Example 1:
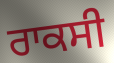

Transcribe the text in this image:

ਰਾਕਸੀ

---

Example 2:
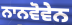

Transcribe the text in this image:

ਨਾਨਵੋਵੇਨ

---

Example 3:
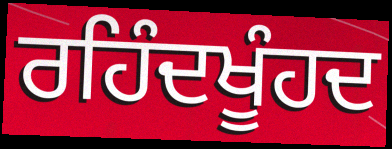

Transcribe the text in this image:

ਰਹਿੰਦਖੂੰਹਦ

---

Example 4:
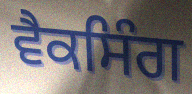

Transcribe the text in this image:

ਵੈਕਸਿੰਗ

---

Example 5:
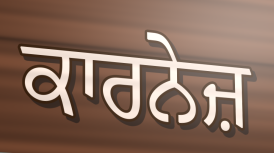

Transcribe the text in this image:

ਕਾਰਨੇਜ਼